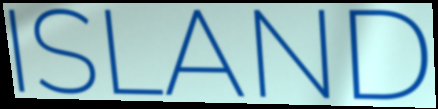
ISLAND